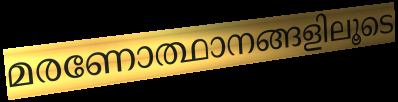
മരണോത്ഥാനങ്ങളിലൂടെ